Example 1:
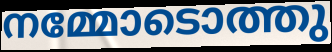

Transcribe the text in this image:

നമ്മോടൊത്തു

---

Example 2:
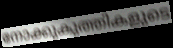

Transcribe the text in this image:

നോക്കുകുത്തികളുടെ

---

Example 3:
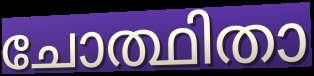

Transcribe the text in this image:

ചോത്ഥിതാ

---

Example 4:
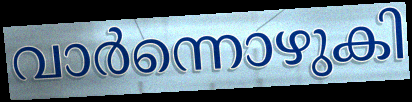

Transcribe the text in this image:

വാർന്നൊഴുകി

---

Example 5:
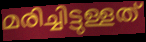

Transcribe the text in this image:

മരിച്ചിട്ടുള്ളത്